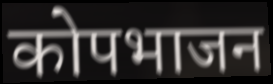
कोपभाजन